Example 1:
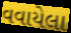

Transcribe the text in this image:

વવાયેલા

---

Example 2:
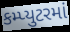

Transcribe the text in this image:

કમ્પ્યુટરમાં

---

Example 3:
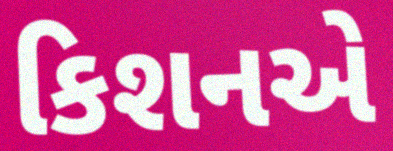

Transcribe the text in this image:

કિશનએ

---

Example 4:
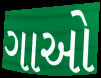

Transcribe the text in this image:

ગાઓ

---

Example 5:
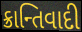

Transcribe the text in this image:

ક્રાન્તિવાદી